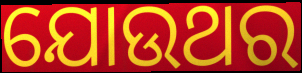
ଯୋଉଥର